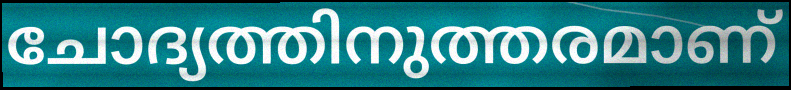
ചോദ്യത്തിനുത്തരമാണ്